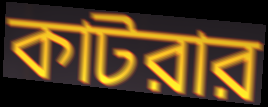
কাটরার